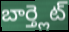
బార్త్లెట్